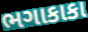
ભગાકાકા